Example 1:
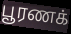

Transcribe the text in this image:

பூரணக்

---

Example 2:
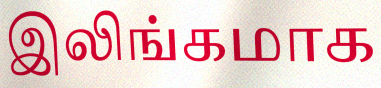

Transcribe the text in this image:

இலிங்கமாக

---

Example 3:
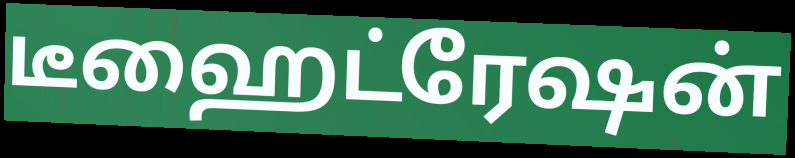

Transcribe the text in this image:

டீஹைட்ரேஷன்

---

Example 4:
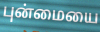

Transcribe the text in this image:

புன்மையை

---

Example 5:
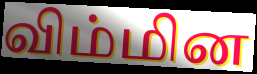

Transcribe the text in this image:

விம்மின